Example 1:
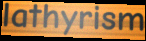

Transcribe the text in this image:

lathyrism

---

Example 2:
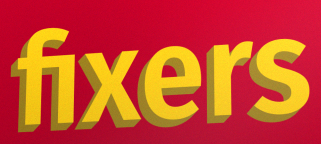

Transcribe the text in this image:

fixers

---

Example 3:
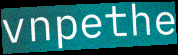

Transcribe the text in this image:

vnpethe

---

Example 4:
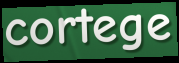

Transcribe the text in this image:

cortege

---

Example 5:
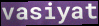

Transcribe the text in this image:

vasiyat